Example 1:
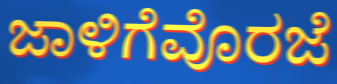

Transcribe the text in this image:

ಜಾಳಿಗೆವೊರಜೆ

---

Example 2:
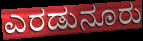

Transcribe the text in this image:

ಎರಡುನೂರು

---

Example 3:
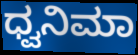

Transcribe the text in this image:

ಧ್ವನಿಮಾ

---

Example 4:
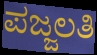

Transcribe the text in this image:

ಪಜ್ಜಲತಿ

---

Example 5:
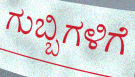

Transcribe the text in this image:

ಗುಬ್ಬಿಗಳಿಗೆ